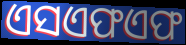
ଏସଏଫଏଫ